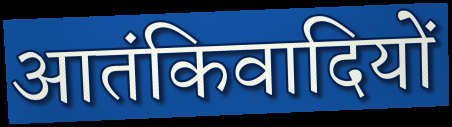
आतंकिवादियों